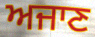
ਅਜਾਣ